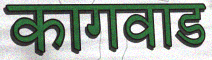
कागवाड